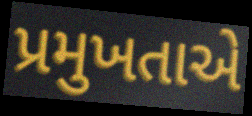
પ્રમુખતાએ